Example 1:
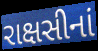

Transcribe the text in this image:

રાક્ષસીનાં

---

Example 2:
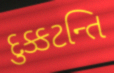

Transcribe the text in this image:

દુક્કટન્તિ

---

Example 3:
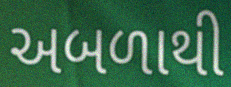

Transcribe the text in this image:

અબળાથી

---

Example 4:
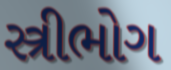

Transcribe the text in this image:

સ્ત્રીભોગ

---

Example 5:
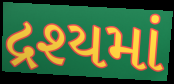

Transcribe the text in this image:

દ્રશ્યમાં